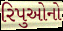
રિપુઓનો